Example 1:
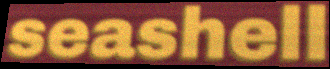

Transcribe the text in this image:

seashell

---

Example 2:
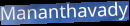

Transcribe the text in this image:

Mananthavady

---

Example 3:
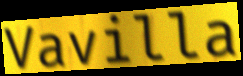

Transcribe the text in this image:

Vavilla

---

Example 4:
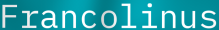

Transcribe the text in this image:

Francolinus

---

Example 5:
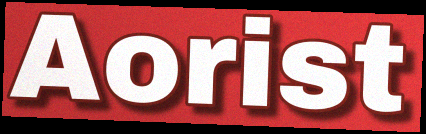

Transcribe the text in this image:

Aorist